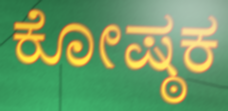
ಕೋಷ್ಠಕ